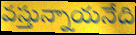
వస్తున్నాయనేది